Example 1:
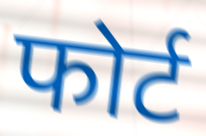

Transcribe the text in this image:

फोर्ट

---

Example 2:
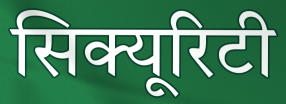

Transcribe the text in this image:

सिक्यूरिटी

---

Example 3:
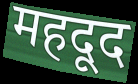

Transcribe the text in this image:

महदूद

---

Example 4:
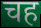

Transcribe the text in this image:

चह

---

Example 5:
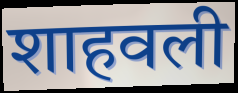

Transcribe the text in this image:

शाहवली